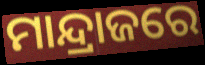
ମାନ୍ଦ୍ରାଜରେ